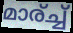
മാര്ച്ച്